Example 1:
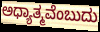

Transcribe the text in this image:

ಅಧ್ಯಾತ್ಮವೆಂಬುದು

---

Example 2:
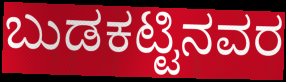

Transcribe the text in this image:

ಬುಡಕಟ್ಟಿನವರ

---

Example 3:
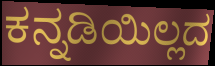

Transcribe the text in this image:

ಕನ್ನಡಿಯಿಲ್ಲದ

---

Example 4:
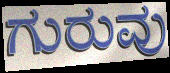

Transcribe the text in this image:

ಗುರುವು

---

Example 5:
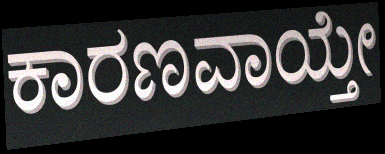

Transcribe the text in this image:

ಕಾರಣವಾಯ್ತೇ